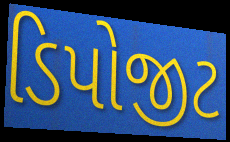
ડિપોજીટ